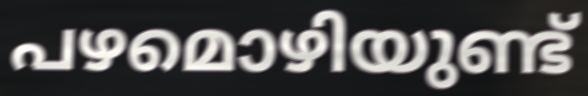
പഴമൊഴിയുണ്ട്